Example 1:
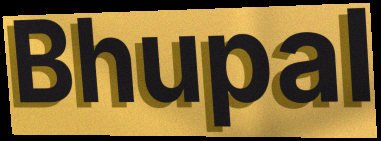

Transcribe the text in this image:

Bhupal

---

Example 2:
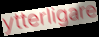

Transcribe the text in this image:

ytterligare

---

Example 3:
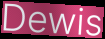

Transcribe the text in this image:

Dewis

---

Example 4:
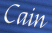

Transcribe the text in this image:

Cain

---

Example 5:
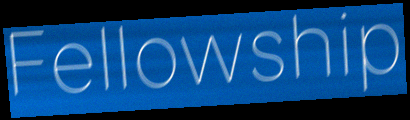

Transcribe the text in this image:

Fellowship